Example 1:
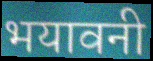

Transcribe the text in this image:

भयावनी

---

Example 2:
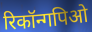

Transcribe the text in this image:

रिकॉन्गपिओ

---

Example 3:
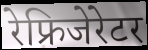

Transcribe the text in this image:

रेफ्रिजेरेटर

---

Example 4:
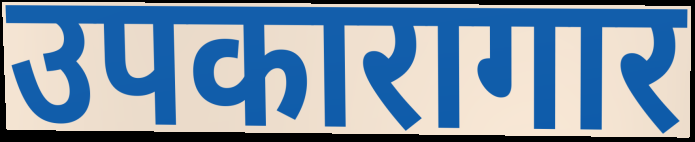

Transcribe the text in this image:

उपकारागार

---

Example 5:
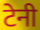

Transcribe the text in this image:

टेनी